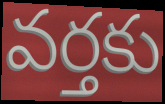
వర్తకు